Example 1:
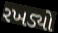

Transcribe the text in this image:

રખડ્યો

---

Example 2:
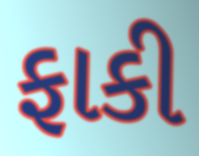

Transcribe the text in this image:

ફાકી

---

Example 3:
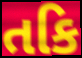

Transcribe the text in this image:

તકિ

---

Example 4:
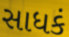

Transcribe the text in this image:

સાધકં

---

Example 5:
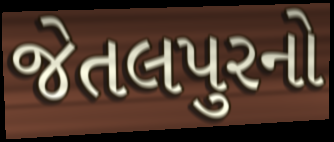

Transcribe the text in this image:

જેતલપુરનો